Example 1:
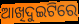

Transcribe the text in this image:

ଆଖିଦୁଇଟିରେ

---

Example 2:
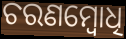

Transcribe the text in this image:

ଚରଣମ୍ବୋଧି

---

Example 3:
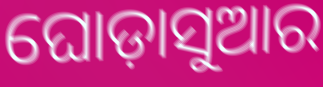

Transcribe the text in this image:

ଘୋଡ଼ାସୁଆର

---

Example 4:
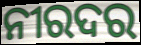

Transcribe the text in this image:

ନୀରଦର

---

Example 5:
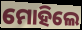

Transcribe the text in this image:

ମୋହିଲେ